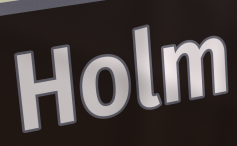
Holm